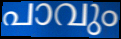
പാവും